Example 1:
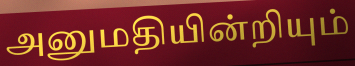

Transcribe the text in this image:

அனுமதியின்றியும்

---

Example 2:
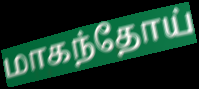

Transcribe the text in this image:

மாகந்தோய்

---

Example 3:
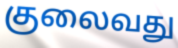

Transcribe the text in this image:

குலைவது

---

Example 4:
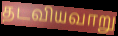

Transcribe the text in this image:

தடவியவாறு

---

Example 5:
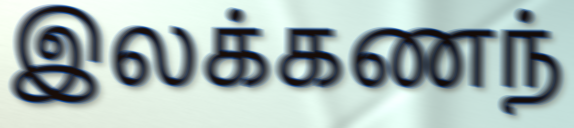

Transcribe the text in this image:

இலக்கணந்